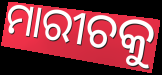
ମାରୀଚକୁ